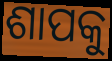
ଶାପକୁ